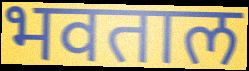
भवताल